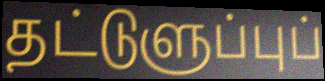
தட்டுளுப்புப்